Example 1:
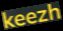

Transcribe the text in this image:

keezh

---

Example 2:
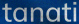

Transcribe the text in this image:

tanati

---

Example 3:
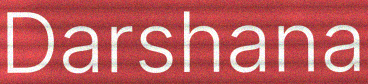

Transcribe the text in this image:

Darshana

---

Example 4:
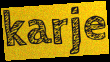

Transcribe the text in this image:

karje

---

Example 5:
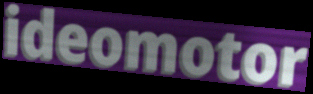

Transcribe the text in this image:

ideomotor